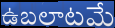
ఉబలాటమే